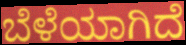
ಬೆಳೆಯಾಗಿದೆ